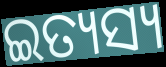
ଇତ୍ୟସ୍ୟ